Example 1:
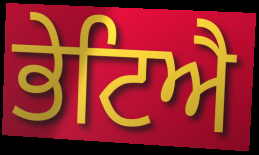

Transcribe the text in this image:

ਭੇਟਿਐ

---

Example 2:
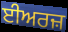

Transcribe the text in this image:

ਈਅਰਜ਼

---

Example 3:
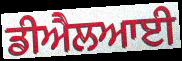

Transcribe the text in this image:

ਡੀਐਲਆਈ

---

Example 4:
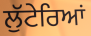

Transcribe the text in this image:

ਲੁੱਟੇਰਿਆਂ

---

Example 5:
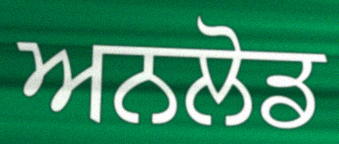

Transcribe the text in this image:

ਅਨਲੋਡ